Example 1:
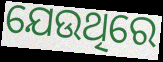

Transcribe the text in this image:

ଯେଉଥିରେ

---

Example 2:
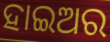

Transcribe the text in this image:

ହାଇଅର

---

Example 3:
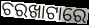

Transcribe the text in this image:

ଚରଖାଟାରେ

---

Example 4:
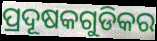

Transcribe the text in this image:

ପ୍ରଦୂଷକଗୁଡିକର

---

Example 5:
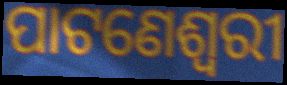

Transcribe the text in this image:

ପାଟଣେଶ୍ୱରୀ